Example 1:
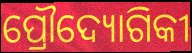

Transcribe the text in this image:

ପ୍ରୌଦ୍ୟୋଗିକୀ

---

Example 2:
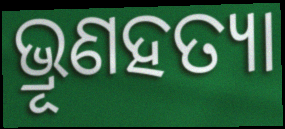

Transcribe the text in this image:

ଭ୍ରୂଣହତ୍ୟା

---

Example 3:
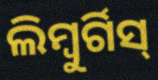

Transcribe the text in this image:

ଲିମ୍ବୁର୍ଗିସ୍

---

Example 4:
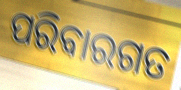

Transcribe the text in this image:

ପରିବାରଗତ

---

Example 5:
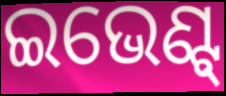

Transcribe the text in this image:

ଇଭେଣ୍ଟ୍